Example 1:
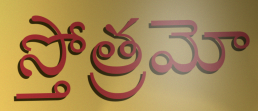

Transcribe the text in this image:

స్తోత్రమో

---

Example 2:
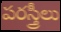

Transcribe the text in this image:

పరస్త్రీలు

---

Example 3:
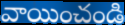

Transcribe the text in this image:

వాయించండి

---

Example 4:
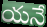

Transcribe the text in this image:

యనే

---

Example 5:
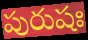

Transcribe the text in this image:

పురుషః